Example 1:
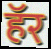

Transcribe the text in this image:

हॅर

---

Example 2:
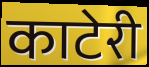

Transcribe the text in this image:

काटेरी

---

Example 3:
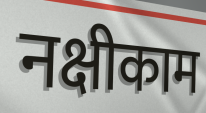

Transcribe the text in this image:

नक्षीकाम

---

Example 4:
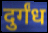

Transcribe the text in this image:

दुर्गंध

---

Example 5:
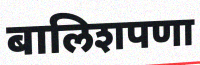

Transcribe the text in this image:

बालिशपणा